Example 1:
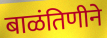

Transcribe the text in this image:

बाळंतिणीने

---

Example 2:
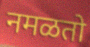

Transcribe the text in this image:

नमळतो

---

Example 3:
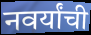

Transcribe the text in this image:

नवर्यांची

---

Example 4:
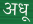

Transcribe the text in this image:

अधू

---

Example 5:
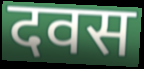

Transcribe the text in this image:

दवस